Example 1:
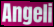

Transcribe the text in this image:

Angeli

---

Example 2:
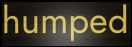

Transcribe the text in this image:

humped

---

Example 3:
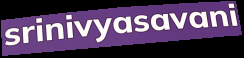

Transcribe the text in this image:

srinivyasavani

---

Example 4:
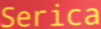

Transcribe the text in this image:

Serica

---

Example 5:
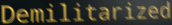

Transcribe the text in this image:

Demilitarized